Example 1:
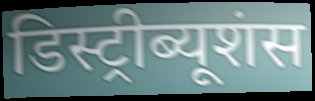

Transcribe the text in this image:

डिस्ट्रीब्यूशंस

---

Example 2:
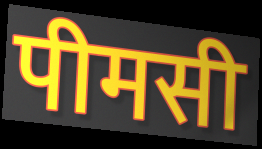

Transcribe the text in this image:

पीमसी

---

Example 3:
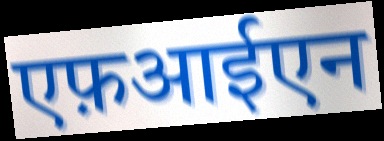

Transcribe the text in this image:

एफ़आईएन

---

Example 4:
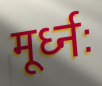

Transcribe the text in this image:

मूर्ध्नः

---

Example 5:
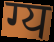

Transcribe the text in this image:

ग्य